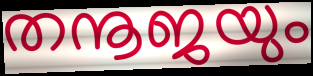
തനൂജയും